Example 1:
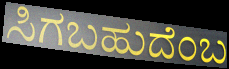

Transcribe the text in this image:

ಸಿಗಬಹುದೆಂಬ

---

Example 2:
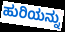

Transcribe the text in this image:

ಹುರಿಯನ್ನು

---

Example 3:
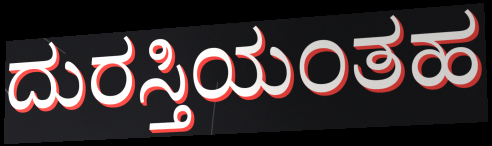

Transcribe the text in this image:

ದುರಸ್ತಿಯಂತಹ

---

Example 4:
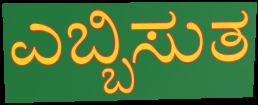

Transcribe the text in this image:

ಎಬ್ಬಿಸುತ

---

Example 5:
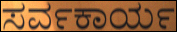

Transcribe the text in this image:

ಸರ್ವಕಾರ್ಯ